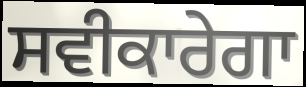
ਸਵੀਕਾਰੇਗਾ